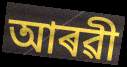
আৰৱী